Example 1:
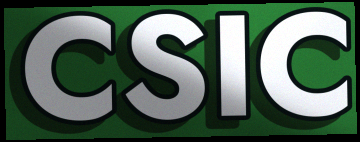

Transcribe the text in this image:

CSIC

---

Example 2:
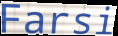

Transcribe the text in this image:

Farsi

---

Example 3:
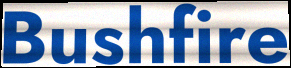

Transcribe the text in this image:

Bushfire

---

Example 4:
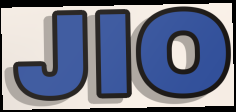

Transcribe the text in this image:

JIO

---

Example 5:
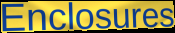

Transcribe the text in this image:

Enclosures